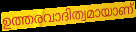
ഉത്തരവാദിത്വമായാണ്